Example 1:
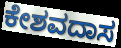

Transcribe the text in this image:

ಕೇಶವದಾಸ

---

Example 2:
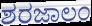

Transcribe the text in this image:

ಶರಜಾಲಂ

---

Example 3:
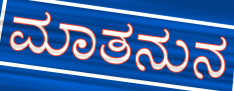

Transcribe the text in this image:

ಮಾತನುನ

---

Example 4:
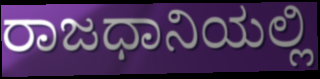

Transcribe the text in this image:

ರಾಜಧಾನಿಯಲ್ಲಿ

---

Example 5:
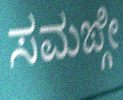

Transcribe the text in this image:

ಸಮಙ್ಗೀ